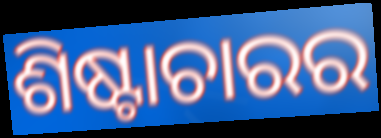
ଶିଷ୍ଟାଚାରର